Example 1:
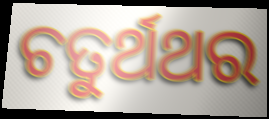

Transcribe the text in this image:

ଚତୁର୍ଥଥର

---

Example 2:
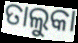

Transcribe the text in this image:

ତାଲୁକା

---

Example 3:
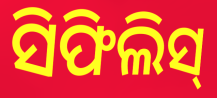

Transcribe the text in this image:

ସିଫିଲିସ୍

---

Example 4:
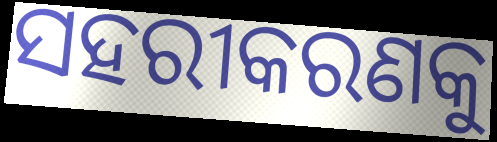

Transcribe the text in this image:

ସହରୀକରଣକୁ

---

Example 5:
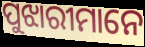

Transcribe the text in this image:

ପୁଝାରୀମାନେ